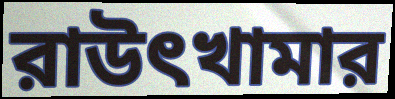
রাউৎখামার